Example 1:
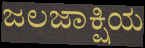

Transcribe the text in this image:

ಜಲಜಾಕ್ಷಿಯ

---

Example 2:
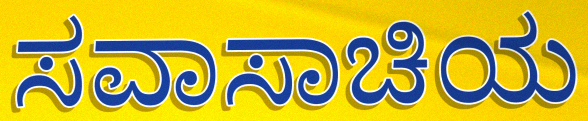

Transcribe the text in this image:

ಸವಾಸಾಚಿಯ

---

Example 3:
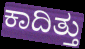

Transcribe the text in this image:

ಕಾದಿತ್ತು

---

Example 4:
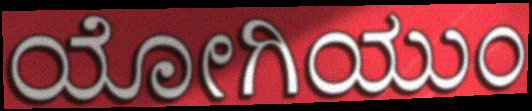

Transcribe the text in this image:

ಯೋಗಿಯುಂ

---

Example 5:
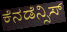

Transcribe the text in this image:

ಕೆನಡೆನ್ಸಿಸ್